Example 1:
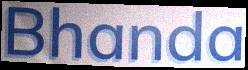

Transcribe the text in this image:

Bhanda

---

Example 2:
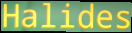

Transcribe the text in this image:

Halides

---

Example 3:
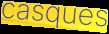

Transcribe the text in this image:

casques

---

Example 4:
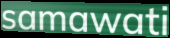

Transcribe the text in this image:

samawati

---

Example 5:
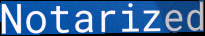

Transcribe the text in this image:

Notarized